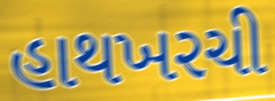
હાથખરચી